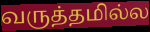
வருத்தமில்ல